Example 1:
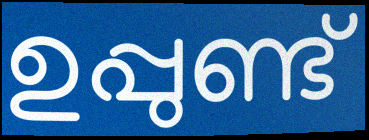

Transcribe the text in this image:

ഉപ്പുണ്ട്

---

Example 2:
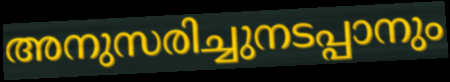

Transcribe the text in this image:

അനുസരിച്ചുനടപ്പാനും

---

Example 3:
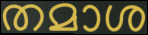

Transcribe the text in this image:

തമാശ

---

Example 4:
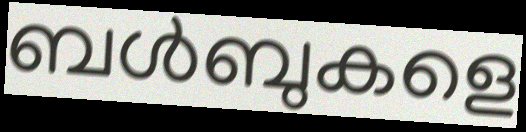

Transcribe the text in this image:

ബൾബുകളെ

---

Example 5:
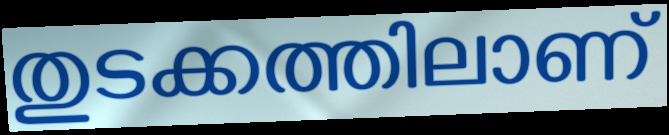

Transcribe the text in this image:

തുടക്കത്തിലാണ്